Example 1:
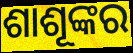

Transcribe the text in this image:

ଶାଶୂଙ୍କର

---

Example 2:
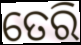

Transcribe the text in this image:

ତେରି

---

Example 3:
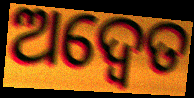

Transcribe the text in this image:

ଅଦ୍ଵେତ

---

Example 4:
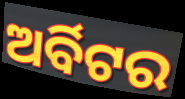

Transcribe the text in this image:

ଅର୍ବିଟର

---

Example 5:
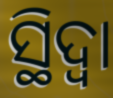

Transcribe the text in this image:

ସ୍ଥିଦ୍ଵା